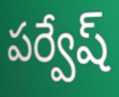
పర్వేష్